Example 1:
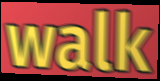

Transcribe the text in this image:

walk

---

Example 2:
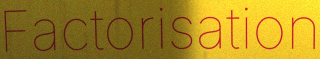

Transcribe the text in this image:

Factorisation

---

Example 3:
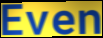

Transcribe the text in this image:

Even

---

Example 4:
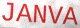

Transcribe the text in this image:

JANVA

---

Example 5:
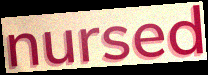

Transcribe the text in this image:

nursed